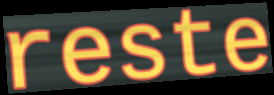
reste